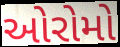
ઓરોમો